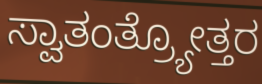
ಸ್ವಾತಂತ್ರ್ಯೋತ್ತರ